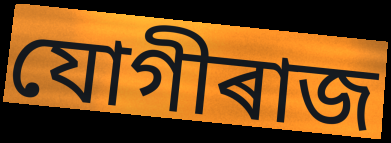
যোগীৰাজ